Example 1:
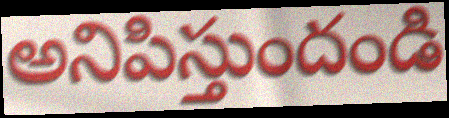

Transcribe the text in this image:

అనిపిస్తుందండి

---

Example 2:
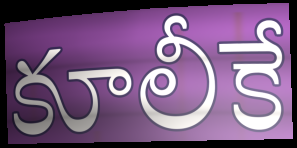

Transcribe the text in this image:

కూలీకే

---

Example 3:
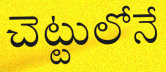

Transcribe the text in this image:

చెట్టులోనే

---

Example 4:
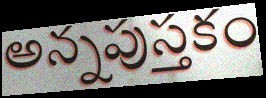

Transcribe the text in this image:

అన్నపుస్తకం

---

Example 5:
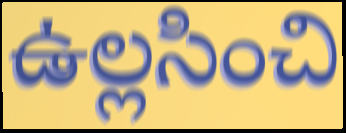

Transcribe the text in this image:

ఉల్లసించి